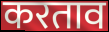
करताव